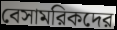
বেসামরিকদের